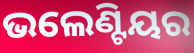
ଭଲେଣ୍ଟିୟର